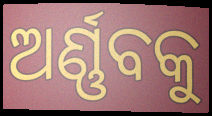
ଅର୍ଣ୍ଣବକୁ